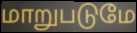
மாறுபடுமே